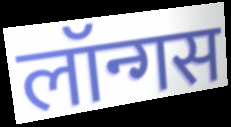
लॉन्गस